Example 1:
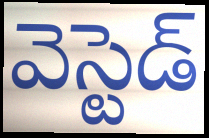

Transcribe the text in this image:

వెస్టెడ్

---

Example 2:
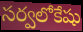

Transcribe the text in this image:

సర్వలోకేషు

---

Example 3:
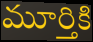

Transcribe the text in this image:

మూర్తికి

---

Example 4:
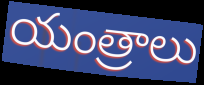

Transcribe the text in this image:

యంత్రాలు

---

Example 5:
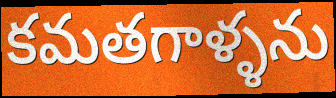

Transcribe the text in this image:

కమతగాళ్ళను